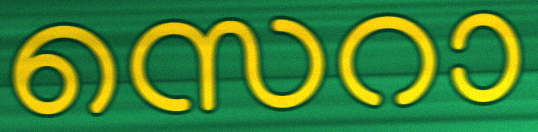
സെറാ